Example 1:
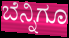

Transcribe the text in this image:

ಬೆನ್ನಿಗೂ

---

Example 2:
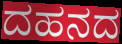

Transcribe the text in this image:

ದಹನದ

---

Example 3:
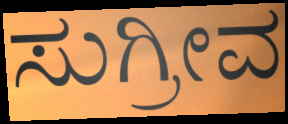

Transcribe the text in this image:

ಸುಗ್ರೀವ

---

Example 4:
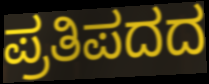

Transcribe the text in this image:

ಪ್ರತಿಪದದ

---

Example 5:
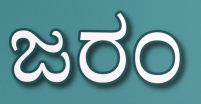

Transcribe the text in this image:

ಜರಂ